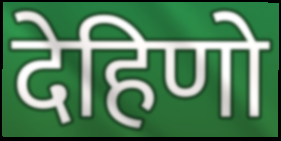
देहिणो